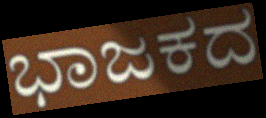
ಭಾಜಕದ